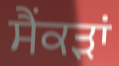
ਸੈਂਕੜਾਂ